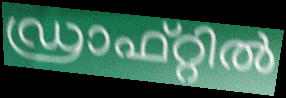
ഡ്രാഫ്റ്റിൽ